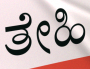
ತೇಹಿ